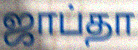
ஜாப்தா